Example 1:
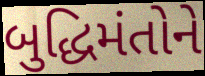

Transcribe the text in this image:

બુદ્ધિમંતોને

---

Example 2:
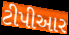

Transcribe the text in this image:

ટીપીઆર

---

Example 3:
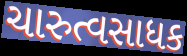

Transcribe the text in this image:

ચારુત્વસાધક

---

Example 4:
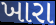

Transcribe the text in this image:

ખારા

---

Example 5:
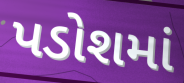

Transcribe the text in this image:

પડોશમાં